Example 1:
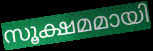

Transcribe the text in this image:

സൂക്ഷമമായി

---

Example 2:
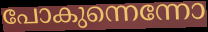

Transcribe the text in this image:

പോകുന്നെന്നോ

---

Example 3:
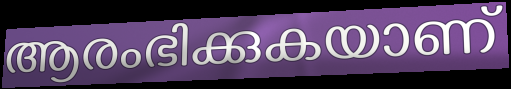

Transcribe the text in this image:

ആരംഭിക്കുകയാണ്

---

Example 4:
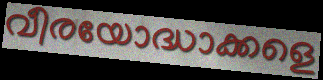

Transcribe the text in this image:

വീരയോദ്ധാക്കളെ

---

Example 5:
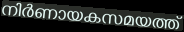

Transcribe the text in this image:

നിർണായകസമയത്ത്